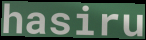
hasiru